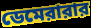
ডেমেরারার